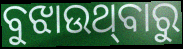
ବୁଝାଉଥ୍‌ବାରୁ